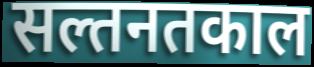
सल्तनतकाल